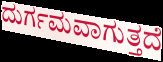
ದುರ್ಗಮವಾಗುತ್ತದೆ